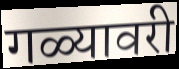
गळ्यावरी